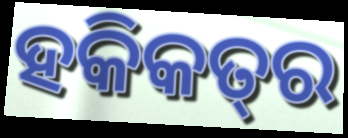
ହକିକତ୍‌ର